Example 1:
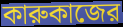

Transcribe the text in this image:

কারুকাজের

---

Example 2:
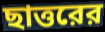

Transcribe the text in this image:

ছাত্তরের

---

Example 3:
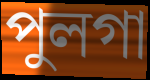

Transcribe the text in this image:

পুলগা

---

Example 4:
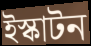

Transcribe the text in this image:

ইস্কাটন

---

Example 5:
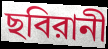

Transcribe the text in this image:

ছবিরানী